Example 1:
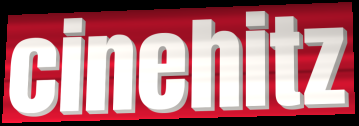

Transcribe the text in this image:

cinehitz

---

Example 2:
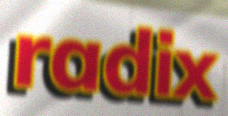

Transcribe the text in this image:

radix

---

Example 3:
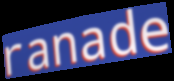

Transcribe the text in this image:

ranade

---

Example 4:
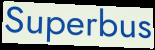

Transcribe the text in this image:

Superbus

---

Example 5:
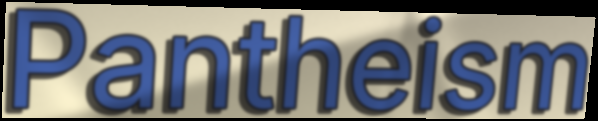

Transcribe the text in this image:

Pantheism